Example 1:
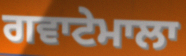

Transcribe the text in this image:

ਗਵਾਟੇਮਾਲਾ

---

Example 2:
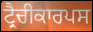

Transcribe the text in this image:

ਟ੍ਰੈਚੀਕਾਰਪਸ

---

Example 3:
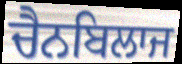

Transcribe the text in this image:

ਚੈਨਬਿਲਾਜ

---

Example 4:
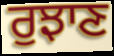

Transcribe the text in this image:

ਰੁਝਾਣ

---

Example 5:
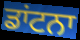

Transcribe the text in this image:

ਡਾਂਟਨਾ